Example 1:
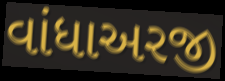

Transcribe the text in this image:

વાંધાઅરજી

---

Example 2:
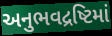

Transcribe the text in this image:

અનુભવદ્રષ્ટિમાં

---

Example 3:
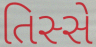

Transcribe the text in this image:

તિસ્સે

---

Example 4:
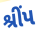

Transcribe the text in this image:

શ્રીંપ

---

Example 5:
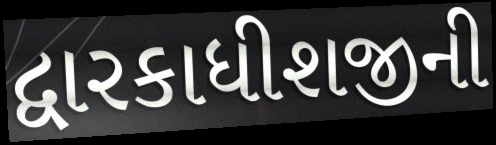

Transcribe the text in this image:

દ્વારકાધીશજીની